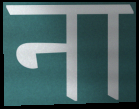
ना